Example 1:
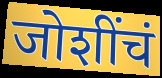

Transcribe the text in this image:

जोशींचं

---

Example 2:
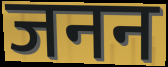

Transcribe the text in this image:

जनन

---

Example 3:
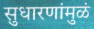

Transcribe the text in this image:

सुधारणांमुळं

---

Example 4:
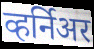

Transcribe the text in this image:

व्हर्निअर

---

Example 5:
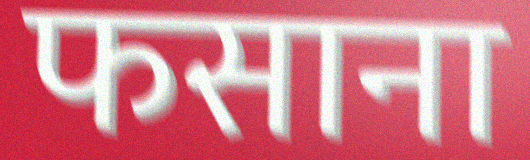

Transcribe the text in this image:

फसाना